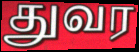
துவர